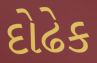
દોઢેક